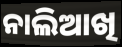
ନାଲିଆଖି